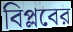
বিপ্লবের